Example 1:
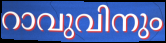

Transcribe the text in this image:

റാവുവിനും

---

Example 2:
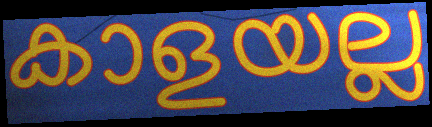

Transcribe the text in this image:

കാളയല്ല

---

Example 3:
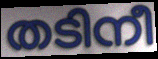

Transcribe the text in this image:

തടിനീ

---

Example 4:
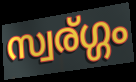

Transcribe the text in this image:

സ്വര്ഗ്ഗം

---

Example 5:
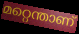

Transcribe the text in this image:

മറ്റെന്താണ്